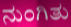
ನುಂಗಿತು